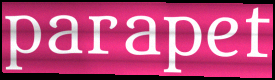
parapet